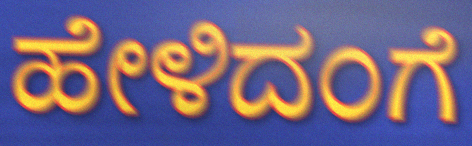
ಹೇಳಿದಂಗೆ